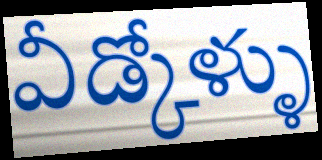
వీడ్కోళ్ళు